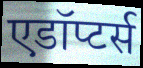
एडॉप्टर्स